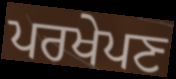
ਪਰਖੇਪਣ